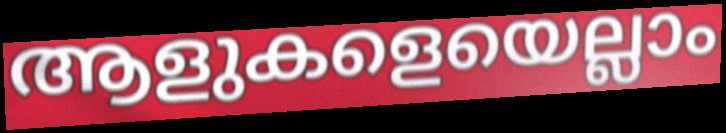
ആളുകളെയെല്ലാം